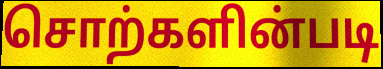
சொற்களின்படி